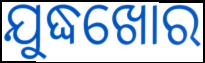
ଯୁଦ୍ଧଖୋର